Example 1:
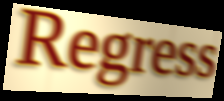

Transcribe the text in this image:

Regress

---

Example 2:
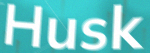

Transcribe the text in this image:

Husk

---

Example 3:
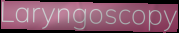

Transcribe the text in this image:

Laryngoscopy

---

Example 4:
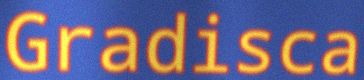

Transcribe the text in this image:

Gradisca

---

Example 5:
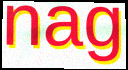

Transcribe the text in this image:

nag